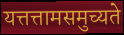
यत्तत्तामसमुच्यते